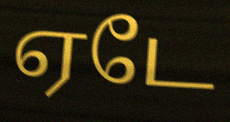
ஏடே